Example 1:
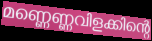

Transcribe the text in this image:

മണ്ണെണ്ണവിളക്കിന്റെ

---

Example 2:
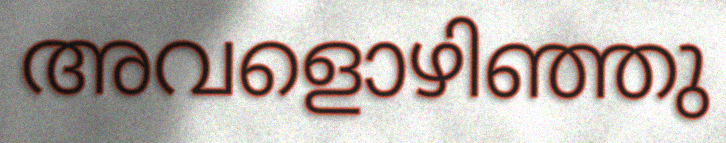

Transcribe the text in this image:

അവളൊഴിഞ്ഞു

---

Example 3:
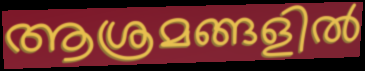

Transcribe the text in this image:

ആശ്രമങ്ങളിൽ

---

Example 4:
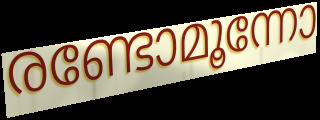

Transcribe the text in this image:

രണ്ടോമൂന്നോ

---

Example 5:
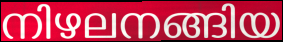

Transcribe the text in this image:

നിഴലനങ്ങിയ